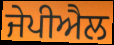
ਜੇਪੀਐਲ